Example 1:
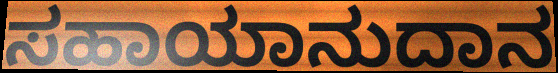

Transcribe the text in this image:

ಸಹಾಯಾನುದಾನ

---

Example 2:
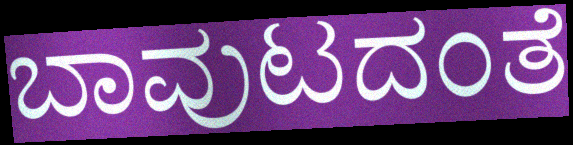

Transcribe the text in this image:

ಬಾವುಟದಂತೆ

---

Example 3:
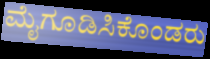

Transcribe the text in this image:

ಮೈಗೂಡಿಸಿಕೊಂಡರು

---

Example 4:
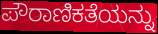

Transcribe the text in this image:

ಪೌರಾಣಿಕತೆಯನ್ನು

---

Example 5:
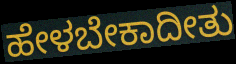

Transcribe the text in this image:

ಹೇಳಬೇಕಾದೀತು